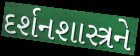
દર્શનશાસ્ત્રને